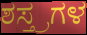
ಶಸ್ತ್ರಗಳ